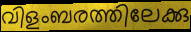
വിളംബരത്തിലേക്കു